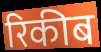
रिकीब